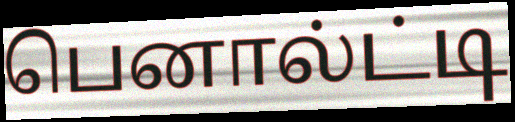
பெனால்ட்டி